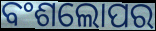
ବଂଶଲୋପର